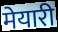
मेयारी